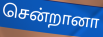
சென்றானா